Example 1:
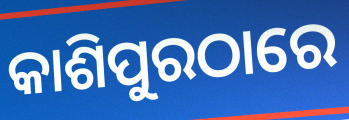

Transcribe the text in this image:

କାଶିପୁରଠାରେ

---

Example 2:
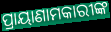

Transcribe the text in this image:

ପ୍ରାୟାଣାମକାରୀଙ୍କ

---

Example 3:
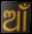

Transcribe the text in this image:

ଆଁ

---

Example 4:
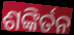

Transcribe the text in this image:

ଶଙ୍କିର୍ତନ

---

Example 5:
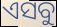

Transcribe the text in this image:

ଏସବୁ